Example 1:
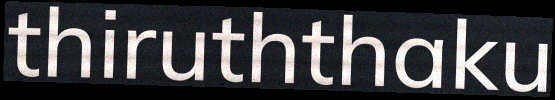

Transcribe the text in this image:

thiruththaku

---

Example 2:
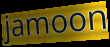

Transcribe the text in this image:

jamoon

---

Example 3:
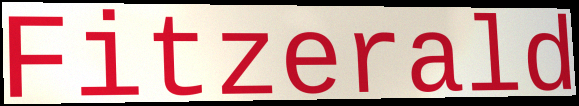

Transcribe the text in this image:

Fitzerald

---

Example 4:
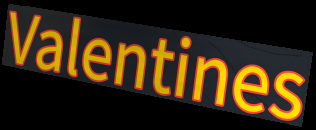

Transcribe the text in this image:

Valentines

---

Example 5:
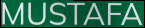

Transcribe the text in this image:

MUSTAFA